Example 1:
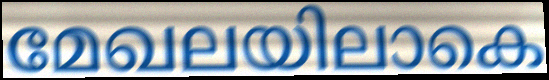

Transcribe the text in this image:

മേഖലയിലാകെ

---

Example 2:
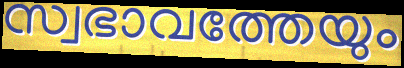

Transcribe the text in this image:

സ്വഭാവത്തേയും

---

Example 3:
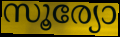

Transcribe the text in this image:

സൂര്യോ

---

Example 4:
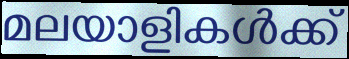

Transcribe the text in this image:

മലയാളികൾക്ക്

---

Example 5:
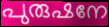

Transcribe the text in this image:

പുരുഷനേ